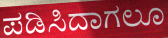
ಪಡಿಸಿದಾಗಲೂ